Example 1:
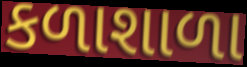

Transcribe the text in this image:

કળાશાળા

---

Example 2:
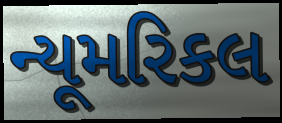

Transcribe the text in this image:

ન્યૂમરિકલ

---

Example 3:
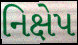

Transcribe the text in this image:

નિક્ષેપ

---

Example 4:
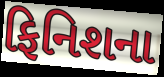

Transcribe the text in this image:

ફિનિશના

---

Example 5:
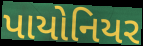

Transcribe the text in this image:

પાયોનિયર